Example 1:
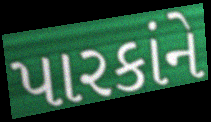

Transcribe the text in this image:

પારકાંને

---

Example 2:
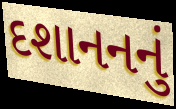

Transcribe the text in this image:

દશાનનનું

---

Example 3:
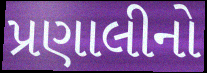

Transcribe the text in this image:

પ્રણાલીનો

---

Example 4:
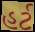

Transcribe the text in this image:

હર્ટ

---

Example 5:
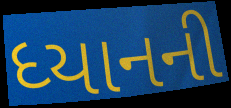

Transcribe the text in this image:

ધ્યાનની